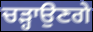
ਚੜ੍ਹਾਉਣਗੇ